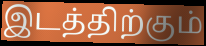
இடத்திற்கும்